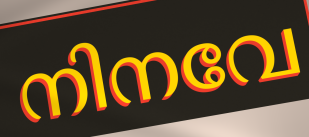
നിനവേ